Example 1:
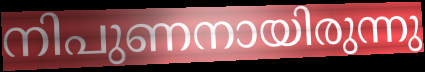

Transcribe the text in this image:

നിപുണനായിരുന്നു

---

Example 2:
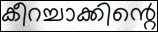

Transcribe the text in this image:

കീറച്ചാക്കിന്റെ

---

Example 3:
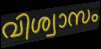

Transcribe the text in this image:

വിശ്വാസം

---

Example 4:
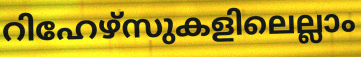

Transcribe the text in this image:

റിഹേഴ്സുകളിലെല്ലാം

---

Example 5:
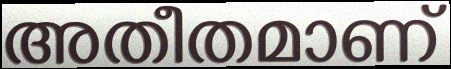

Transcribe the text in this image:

അതീതമാണ്